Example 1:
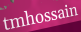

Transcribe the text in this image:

tmhossain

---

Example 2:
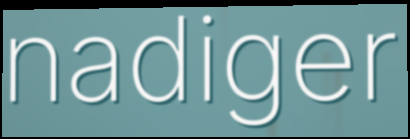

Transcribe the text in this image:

nadiger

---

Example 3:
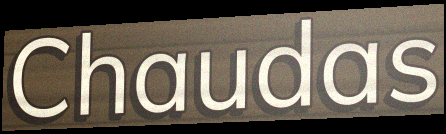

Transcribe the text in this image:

Chaudas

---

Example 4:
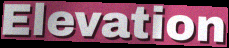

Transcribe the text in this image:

Elevation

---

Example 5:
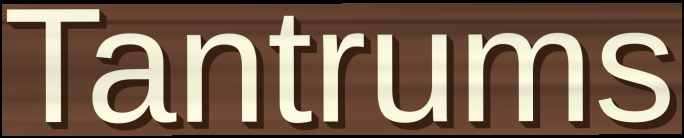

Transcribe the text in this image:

Tantrums